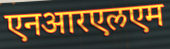
एनआरएलएम